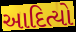
આદિત્યો